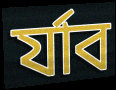
র্যাব